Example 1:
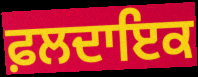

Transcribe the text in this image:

ਫ਼ਲਦਾਇਕ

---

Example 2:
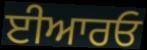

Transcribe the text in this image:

ਈਆਰਓ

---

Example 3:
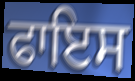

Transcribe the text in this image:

ਫਾਇਸ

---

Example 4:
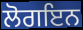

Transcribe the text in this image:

ਲੋਗਇਨ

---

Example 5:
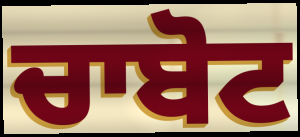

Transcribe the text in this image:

ਚਾਬੋਟ